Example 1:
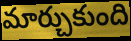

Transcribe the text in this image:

మార్చుకుంది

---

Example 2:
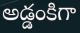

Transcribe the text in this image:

అడ్డంకిగా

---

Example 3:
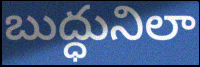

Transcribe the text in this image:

బుద్ధునిలా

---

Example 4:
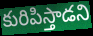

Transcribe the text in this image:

కురిపిస్తాడని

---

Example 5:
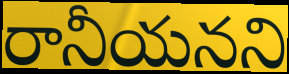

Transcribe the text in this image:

రానీయనని